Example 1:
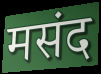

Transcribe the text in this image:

मसंद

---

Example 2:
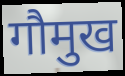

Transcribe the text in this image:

गौमुख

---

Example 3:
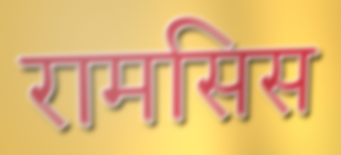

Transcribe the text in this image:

रामसिस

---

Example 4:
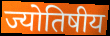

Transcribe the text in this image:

ज्योतिषीय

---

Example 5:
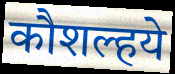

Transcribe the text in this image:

कौशल्हये